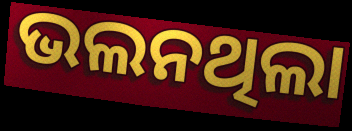
ଭଲନଥିଲା